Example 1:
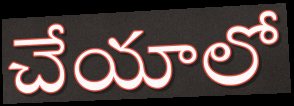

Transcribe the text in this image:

చేయాలో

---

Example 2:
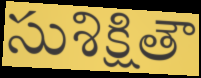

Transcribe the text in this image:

సుశిక్షితౌ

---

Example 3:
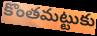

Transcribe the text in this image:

కొంతమట్టుకు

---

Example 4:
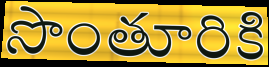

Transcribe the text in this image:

సొంతూరికి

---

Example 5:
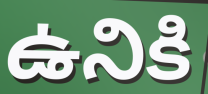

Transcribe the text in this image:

ఉనికి